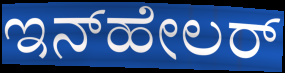
ಇನ್‌ಹೇಲರ್